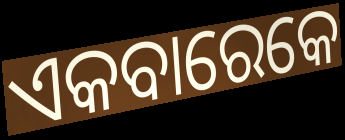
ଏକବାରେକେ